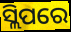
ସ୍ଲିପରେ